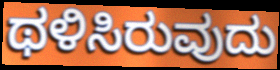
ಥಳಿಸಿರುವುದು